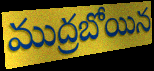
ముద్రబోయిన